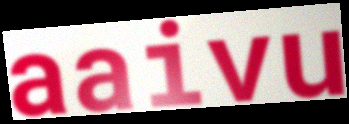
aaivu